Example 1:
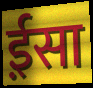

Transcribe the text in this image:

ई़सा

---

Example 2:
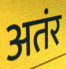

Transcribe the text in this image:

अतंर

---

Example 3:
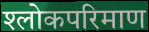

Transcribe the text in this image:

श्लोकपरिमाण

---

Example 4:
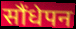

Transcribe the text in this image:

सौंधेपन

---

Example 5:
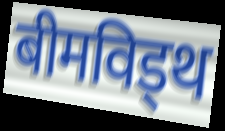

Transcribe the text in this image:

बीमविड्थ